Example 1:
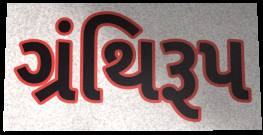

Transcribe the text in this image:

ગ્રંથિરૂપ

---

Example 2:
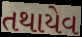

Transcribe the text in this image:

તથાયેવ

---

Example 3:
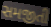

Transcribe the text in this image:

સમજીતી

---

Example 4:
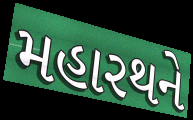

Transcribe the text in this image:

મહારથને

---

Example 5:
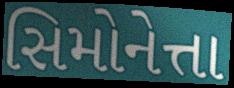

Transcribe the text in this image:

સિમોનેત્તા